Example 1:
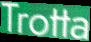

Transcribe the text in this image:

Trotta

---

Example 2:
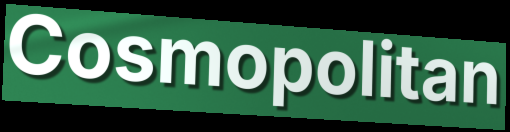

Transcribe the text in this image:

Cosmopolitan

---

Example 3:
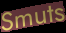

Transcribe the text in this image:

Smuts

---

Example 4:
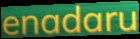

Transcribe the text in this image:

enadaru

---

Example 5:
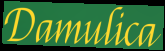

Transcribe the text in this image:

Damulica